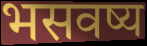
भसवष्य